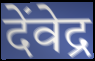
देंवेद्र